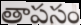
తాపసం